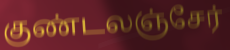
குண்டலஞ்சேர்